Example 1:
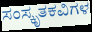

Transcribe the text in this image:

ಸಂಸ್ಕೃತಕವಿಗಳ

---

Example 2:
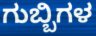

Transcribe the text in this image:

ಗುಬ್ಬಿಗಳ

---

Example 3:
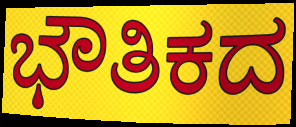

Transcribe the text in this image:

ಭೌತಿಕದ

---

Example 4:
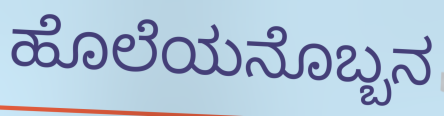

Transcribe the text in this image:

ಹೊಲೆಯನೊಬ್ಬನ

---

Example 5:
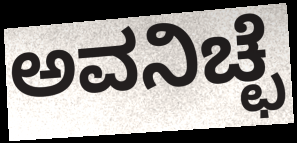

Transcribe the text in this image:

ಅವನಿಚ್ಛೆ